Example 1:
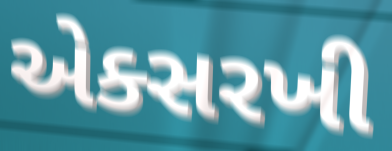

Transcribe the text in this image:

એક્સરખી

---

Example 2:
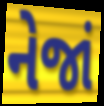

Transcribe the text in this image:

નેજાં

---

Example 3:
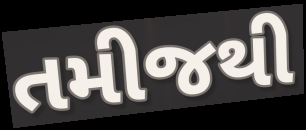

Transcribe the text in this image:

તમીજથી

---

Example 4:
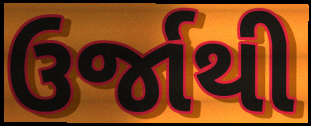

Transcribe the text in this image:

ઉર્જાથી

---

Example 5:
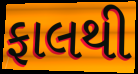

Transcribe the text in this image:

ફાલથી